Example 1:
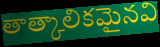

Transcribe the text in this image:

తాత్కాలికమైనవి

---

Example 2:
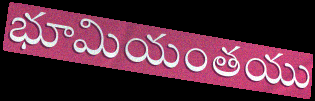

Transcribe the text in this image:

భూమియంతయు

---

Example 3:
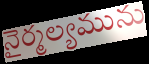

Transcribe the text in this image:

నైర్మల్యమును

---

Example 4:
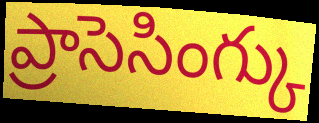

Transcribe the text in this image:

ప్రాసెసింగ్కు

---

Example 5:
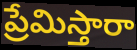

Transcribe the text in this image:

ప్రేమిస్తారా